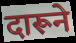
दारूने